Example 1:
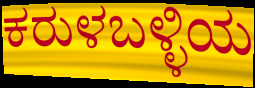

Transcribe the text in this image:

ಕರುಳಬಳ್ಳಿಯ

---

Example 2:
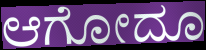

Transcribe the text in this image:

ಆಗೋದೂ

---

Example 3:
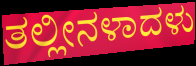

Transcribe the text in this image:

ತಲ್ಲೀನಳಾದಳು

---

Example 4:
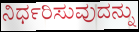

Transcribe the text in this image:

ನಿರ್ಧರಿಸುವುದನ್ನು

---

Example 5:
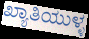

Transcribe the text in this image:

ಖ್ಯಾತಿಯುಳ್ಳ